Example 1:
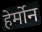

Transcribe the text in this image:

हेर्मोन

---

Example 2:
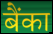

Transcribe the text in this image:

बैंका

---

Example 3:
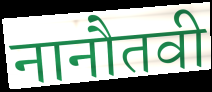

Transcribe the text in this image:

नानौतवी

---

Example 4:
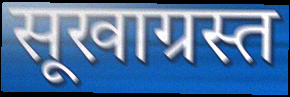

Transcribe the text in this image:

सूखाग्रस्त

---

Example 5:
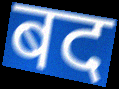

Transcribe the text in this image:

बद